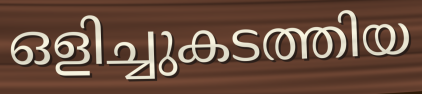
ഒളിച്ചുകടത്തിയ